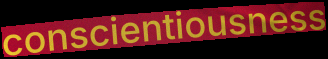
conscientiousness